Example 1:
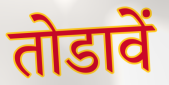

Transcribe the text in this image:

तोडावें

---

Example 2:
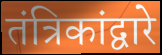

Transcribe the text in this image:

तंत्रिकांद्वारे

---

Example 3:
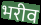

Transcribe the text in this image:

भरीव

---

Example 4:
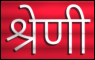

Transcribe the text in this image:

श्रेणी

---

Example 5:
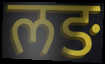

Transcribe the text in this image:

लङ